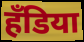
हँडिया